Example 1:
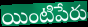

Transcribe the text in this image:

యింటిపేరు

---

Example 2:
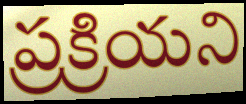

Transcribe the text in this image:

ప్రక్రియని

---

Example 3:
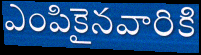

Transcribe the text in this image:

ఎంపికైనవారికి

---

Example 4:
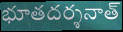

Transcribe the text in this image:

భూతదర్శనాత్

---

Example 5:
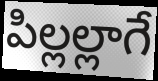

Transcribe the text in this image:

పిల్లల్లాగే